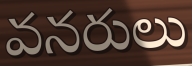
వనరులు